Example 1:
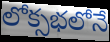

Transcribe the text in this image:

లోక్సభలోనే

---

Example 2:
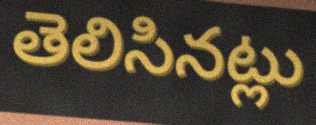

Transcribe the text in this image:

తెలిసినట్లు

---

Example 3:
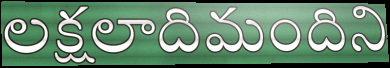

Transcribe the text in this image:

లక్షలాదిమందిని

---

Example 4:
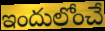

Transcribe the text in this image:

ఇందులోంచే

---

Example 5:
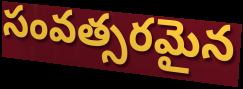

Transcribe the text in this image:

సంవత్సరమైన